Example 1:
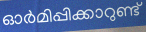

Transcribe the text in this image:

ഓർമിപ്പിക്കാറുണ്ട്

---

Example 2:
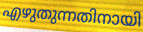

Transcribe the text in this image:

എഴുതുന്നതിനായി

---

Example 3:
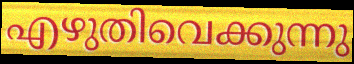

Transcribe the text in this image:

എഴുതിവെക്കുന്നു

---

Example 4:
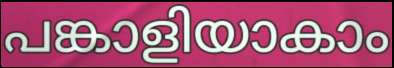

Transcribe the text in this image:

പങ്കാളിയാകാം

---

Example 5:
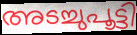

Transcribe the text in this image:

അടച്ചുപൂട്ടി